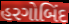
હરગોબિંદ